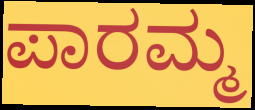
ಪಾರಮ್ಮ